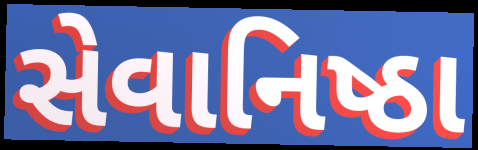
સેવાનિષ્ઠા